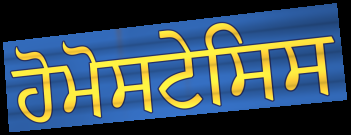
ਹੋਮੋਸਟੇਸਿਸ